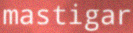
mastigar